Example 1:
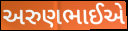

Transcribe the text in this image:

અરુણભાઈએ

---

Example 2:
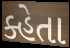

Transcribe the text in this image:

ક્હેતા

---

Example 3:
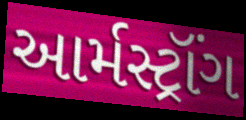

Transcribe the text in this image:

આર્મસ્ટ્રૉંગ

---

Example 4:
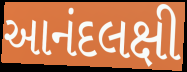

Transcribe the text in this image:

આનંદલક્ષી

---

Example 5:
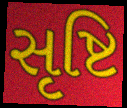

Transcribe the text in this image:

સૃષ્ટિ